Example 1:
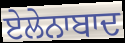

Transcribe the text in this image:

ਏਲੇਨਾਬਾਦ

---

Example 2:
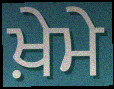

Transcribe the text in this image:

ਖ਼ੇਮੇ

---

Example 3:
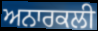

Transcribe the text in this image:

ਅਨਾਰਕਲੀ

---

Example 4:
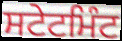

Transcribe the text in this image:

ਸਟੇਟਮਿੰਟ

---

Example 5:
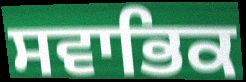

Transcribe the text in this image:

ਸਵਾਭਿਕ